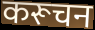
करूचन